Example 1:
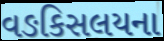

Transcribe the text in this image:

વઙકિસલયના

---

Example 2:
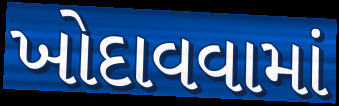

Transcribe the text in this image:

ખોદાવવામાં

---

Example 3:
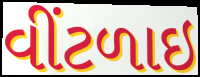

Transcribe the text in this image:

વીંટળાઇ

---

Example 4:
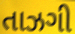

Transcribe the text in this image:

તાઝગી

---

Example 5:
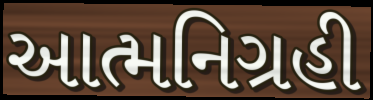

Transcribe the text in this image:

આત્મનિગ્રહી